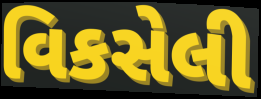
વિકસેલી